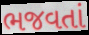
ભજવતાં